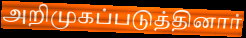
அறிமுகப்படுத்தினார்